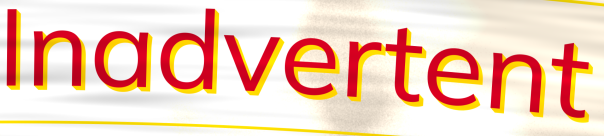
Inadvertent